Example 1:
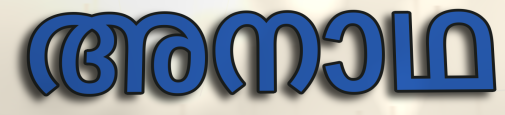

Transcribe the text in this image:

അനാഥ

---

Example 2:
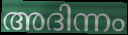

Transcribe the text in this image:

അദിന്നം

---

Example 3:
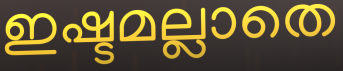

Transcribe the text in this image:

ഇഷ്ടമല്ലാതെ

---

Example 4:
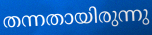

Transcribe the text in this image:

തന്നതായിരുന്നു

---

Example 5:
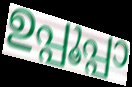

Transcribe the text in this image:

ഉപ്പൂപ്പാ